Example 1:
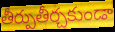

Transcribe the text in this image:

తీర్పుతీర్చకుండా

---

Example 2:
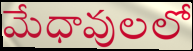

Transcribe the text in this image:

మేధావులలో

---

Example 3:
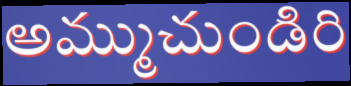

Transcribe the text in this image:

అమ్ముచుండిరి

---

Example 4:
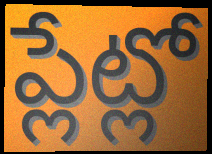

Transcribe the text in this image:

ప్లేట్లో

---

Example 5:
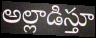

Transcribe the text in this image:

అల్లాడిస్తూ